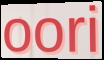
oori